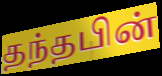
தந்தபின்